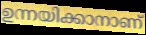
ഉന്നയിക്കാനാണ്